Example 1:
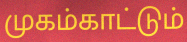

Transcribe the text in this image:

முகம்காட்டும்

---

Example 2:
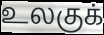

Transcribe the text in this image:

உலகுக்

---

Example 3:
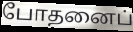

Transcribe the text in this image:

போதனைப்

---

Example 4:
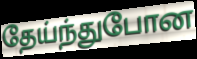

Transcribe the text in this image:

தேய்ந்துபோன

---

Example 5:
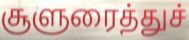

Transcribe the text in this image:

சூளுரைத்துச்